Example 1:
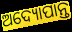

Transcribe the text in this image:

ଅଦ୍ୟୋପାନ୍ତ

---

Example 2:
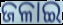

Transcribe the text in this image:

ଜଳାଇ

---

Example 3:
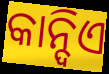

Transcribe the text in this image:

କାନ୍ଦିଏ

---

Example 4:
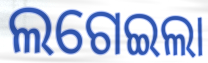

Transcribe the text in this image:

ଲଗେଇଲା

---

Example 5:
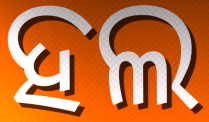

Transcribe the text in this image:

ହଲ